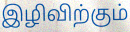
இழிவிற்கும்